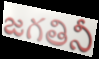
జగతినీ